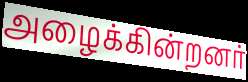
அழைக்கின்றனர்